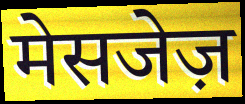
मेसजेज़